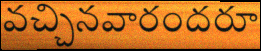
వచ్చినవారందరూ